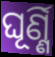
ଘୂର୍ଣ୍ଣି